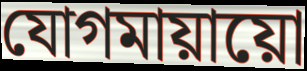
যোগমায়ায়ো